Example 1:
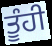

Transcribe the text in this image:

ਤੂੰਹੀ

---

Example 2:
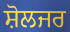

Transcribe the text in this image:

ਸ਼ੋਲਜਰ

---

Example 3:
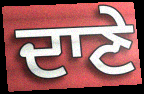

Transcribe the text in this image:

ਦਾਣੇ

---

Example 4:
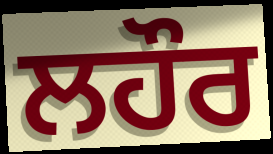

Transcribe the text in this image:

ਲਹੌਰ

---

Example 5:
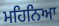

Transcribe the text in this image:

ਮਹਿਨਿਆ